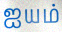
ஐயம்